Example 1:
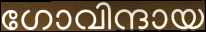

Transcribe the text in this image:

ഗോവിന്ദായ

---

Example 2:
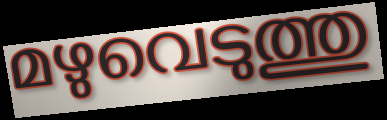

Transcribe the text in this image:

മഴുവെടുത്തു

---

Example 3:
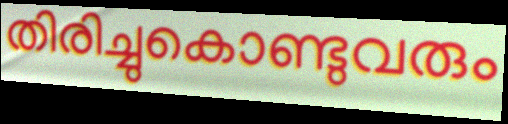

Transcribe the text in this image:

തിരിച്ചുകൊണ്ടുവരും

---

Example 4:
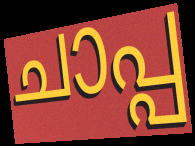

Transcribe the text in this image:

ചാപ്പ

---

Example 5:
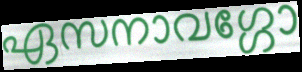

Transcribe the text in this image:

ഏസനാവഗ്ഗോ